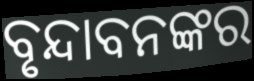
ବୃନ୍ଦାବନଙ୍କର